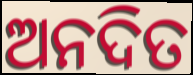
ଅନଦିତ